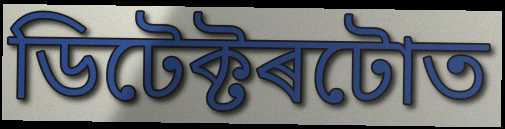
ডিটেক্টৰটোত